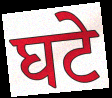
घटे